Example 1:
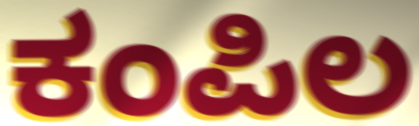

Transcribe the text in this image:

ಕಂಪಿಲ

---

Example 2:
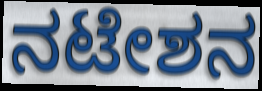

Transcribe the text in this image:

ನಟೇಶನ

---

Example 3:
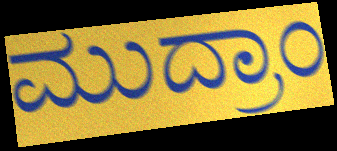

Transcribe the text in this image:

ಮುದ್ರಾಂ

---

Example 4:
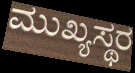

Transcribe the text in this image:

ಮುಖ್ಯಸ್ಥರ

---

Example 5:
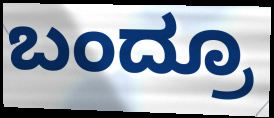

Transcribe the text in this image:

ಬಂದ್ರೂ